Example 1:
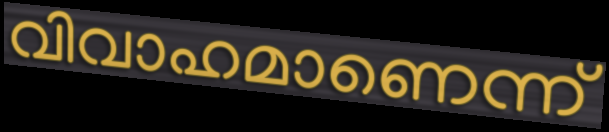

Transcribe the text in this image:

വിവാഹമാണെന്ന്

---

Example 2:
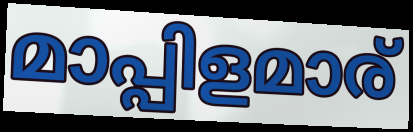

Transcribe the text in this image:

മാപ്പിളമാര്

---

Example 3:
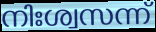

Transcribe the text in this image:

നിഃശ്വസന്ന്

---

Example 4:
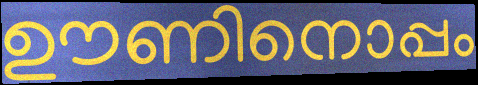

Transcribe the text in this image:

ഊണിനൊപ്പം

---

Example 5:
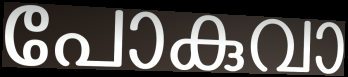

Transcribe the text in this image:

പോകുവാ